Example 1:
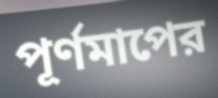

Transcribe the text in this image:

পূর্ণমাপের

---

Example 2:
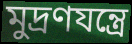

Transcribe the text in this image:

মুদ্রণযন্ত্রে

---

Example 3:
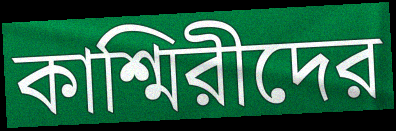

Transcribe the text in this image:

কাশ্মিরীদের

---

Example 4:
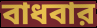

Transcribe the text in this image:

বাধবার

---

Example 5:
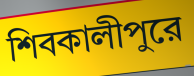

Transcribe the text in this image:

শিবকালীপুরে